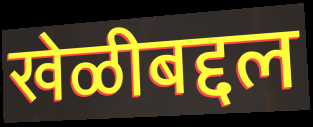
खेळीबद्दल